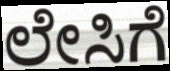
ಲೇಸಿಗೆ